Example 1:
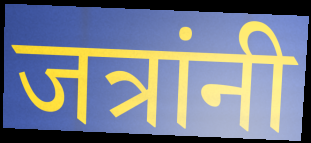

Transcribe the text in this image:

जत्रांनी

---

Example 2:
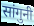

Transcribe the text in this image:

सांगुनी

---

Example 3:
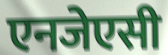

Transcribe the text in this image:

एनजेएसी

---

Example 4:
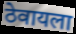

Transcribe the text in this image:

ठेवायला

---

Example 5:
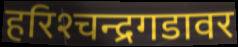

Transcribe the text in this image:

हरिश्चन्द्रगडावर